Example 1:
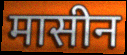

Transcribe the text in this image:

मासीन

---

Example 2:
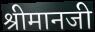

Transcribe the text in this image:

श्रीमानजी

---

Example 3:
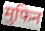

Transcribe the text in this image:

मुफिन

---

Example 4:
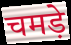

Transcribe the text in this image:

चमड़े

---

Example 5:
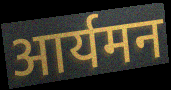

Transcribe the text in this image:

आर्यमन